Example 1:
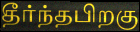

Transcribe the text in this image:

தீர்ந்தபிறகு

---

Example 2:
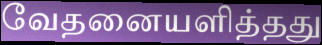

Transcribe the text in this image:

வேதனையளித்தது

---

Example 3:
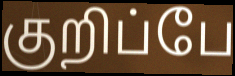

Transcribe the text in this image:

குறிப்பே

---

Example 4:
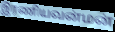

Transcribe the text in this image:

இரணியவன்மன்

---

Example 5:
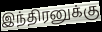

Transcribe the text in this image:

இந்திரனுக்கு